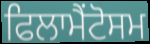
ਫਿਲਾਮੈਂਟੋਸਮ